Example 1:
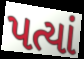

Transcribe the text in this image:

પત્યાં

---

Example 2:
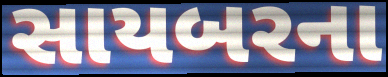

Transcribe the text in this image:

સાયબરના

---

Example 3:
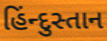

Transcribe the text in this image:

હિંન્દુસ્તાન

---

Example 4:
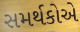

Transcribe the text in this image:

સમર્થકોએ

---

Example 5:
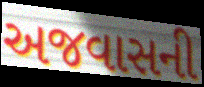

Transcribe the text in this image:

અજવાસની